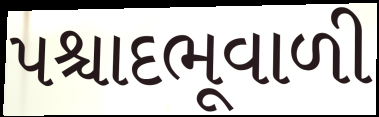
પશ્ચાદભૂવાળી